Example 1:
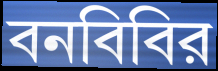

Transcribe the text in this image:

বনবিবির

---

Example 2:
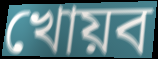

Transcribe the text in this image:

খোয়ব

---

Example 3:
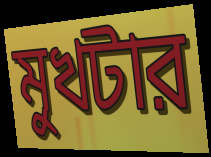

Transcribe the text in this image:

মুখটার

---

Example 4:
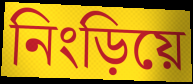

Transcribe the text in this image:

নিংড়িয়ে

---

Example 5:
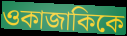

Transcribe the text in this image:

ওকাজাকিকে